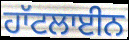
ਹਾੱਟਲਾਈਨ